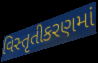
વિસ્તૃતીકરણમાં